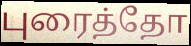
புரைத்தோ